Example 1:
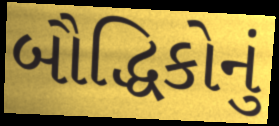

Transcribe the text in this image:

બૌદ્ધિકોનું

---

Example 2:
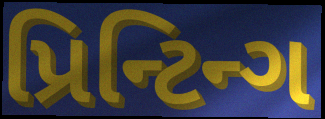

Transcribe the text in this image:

પ્રિન્ટિન્ગ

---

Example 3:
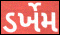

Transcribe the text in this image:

ડર્ખેમ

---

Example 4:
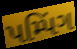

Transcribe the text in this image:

પમ્પિંગ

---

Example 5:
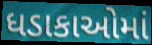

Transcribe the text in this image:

ધડાકાઓમાં